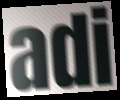
adi